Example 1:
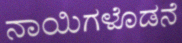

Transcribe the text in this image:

ನಾಯಿಗಳೊಡನೆ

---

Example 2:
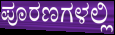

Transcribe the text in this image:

ಪೂರಣಗಳಲ್ಲಿ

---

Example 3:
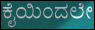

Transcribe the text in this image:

ಕೈಯಿಂದಲೇ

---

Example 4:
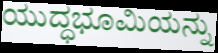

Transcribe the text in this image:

ಯುದ್ಧಭೂಮಿಯನ್ನು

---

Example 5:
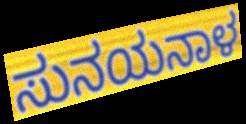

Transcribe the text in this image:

ಸುನಯನಾಳ